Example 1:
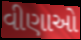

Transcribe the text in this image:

વીણાઓ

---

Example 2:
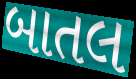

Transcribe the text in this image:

બાતલ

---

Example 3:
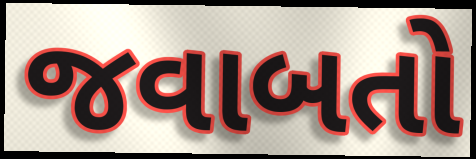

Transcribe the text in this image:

જવાબતો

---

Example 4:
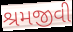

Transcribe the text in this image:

શ્રમજીવી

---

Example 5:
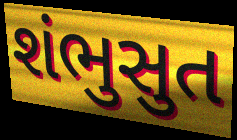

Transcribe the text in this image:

શંભુસુત